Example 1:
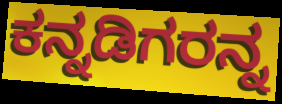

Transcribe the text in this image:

ಕನ್ನಡಿಗರನ್ನ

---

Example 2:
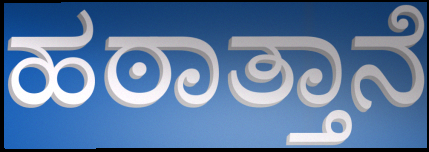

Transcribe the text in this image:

ಹಠಾತ್ತಾನೆ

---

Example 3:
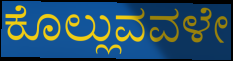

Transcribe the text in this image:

ಕೊಲ್ಲುವವಳೇ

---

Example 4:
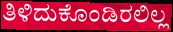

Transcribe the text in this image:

ತಿಳಿದುಕೊಂಡಿರಲಿಲ್ಲ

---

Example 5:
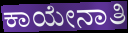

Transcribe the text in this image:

ಕಾಯೇನಾತಿ